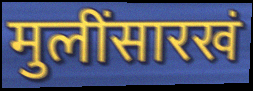
मुलींसारखं